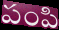
పంపి